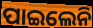
ପାଇଲେନି